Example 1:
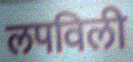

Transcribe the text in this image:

लपविली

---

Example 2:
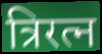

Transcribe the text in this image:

त्रिरत्न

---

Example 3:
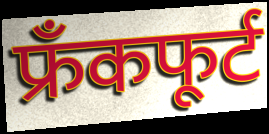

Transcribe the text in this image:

फ्रँकफूर्ट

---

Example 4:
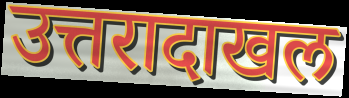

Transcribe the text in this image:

उत्तरादाखल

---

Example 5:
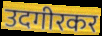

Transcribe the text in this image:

उदगीरकर